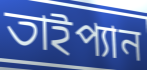
তাইপ্যান